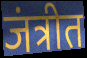
जंत्रीत